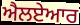
ਐਲਏਆਰ